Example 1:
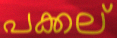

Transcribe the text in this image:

പക്കല്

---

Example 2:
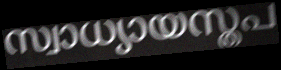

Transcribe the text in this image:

സ്വാധ്യായസ്തപ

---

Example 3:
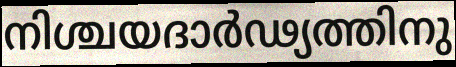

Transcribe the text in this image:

നിശ്ചയദാർഢ്യത്തിനു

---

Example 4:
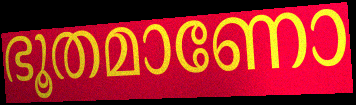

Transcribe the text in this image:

ഭൂതമാണോ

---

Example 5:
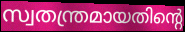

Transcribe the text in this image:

സ്വതന്ത്രമായതിന്റെ